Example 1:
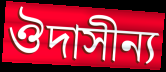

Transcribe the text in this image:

ঔদাসীন্য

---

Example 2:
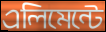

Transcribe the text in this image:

এলিমেন্টে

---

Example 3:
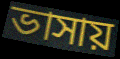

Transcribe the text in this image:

ভাসায়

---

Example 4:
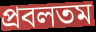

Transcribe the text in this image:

প্রবলতম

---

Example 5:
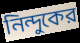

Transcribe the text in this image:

নিন্দুকের